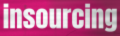
insourcing